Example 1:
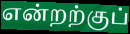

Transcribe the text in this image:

என்றற்குப்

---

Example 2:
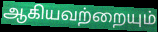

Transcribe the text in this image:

ஆகியவற்றையும்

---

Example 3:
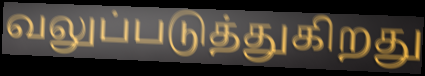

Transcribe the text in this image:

வலுப்படுத்துகிறது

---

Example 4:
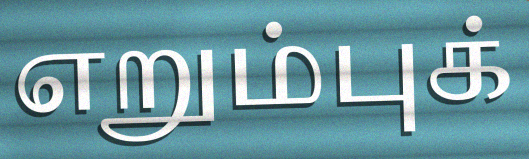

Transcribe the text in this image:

எறும்புக்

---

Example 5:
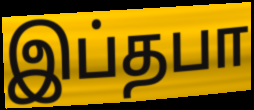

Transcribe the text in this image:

இப்தபா